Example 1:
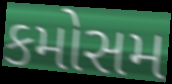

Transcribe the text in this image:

કમોસમ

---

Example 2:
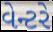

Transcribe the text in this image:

વેન્ટરે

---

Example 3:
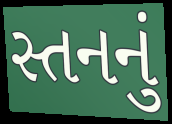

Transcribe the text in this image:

સ્તનનું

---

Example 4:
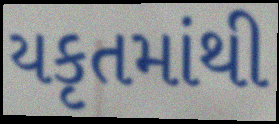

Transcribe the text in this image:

યકૃતમાંથી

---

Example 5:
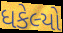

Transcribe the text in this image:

ધકેલ્યો